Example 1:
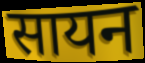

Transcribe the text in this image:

सायन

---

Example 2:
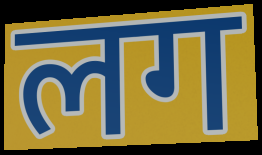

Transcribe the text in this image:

लग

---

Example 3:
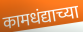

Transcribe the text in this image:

कामधंद्याच्या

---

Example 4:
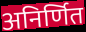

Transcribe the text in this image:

अनिर्णित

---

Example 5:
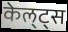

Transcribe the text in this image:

केल्ट्स